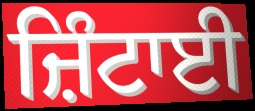
ਜ਼ਿੰਟਾਈ